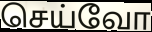
செய்வோ